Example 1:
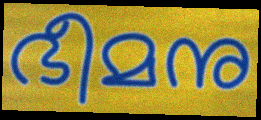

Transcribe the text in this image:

ഭീമനു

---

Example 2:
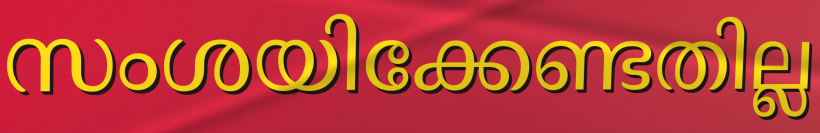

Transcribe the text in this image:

സംശയിക്കേണ്ടതില്ല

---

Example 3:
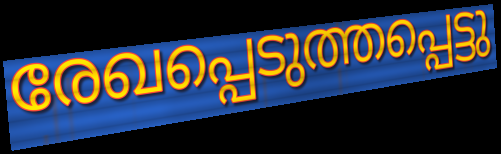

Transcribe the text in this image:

രേഖപ്പെടുത്തപ്പെട്ടു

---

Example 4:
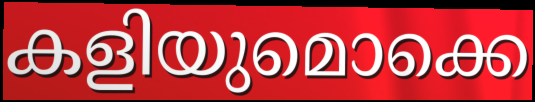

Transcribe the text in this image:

കളിയുമൊക്കെ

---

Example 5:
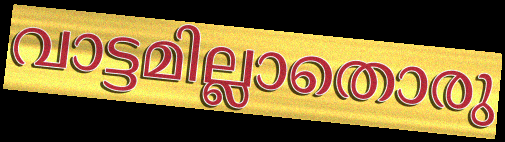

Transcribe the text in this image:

വാട്ടമില്ലാതൊരു